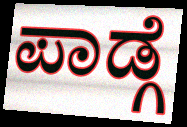
ಪಾಡ್ಗೆ